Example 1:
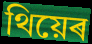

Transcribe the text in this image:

থিয়েৰ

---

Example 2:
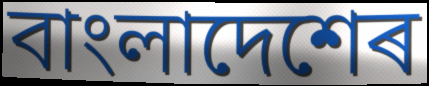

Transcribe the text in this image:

বাংলাদেশেৰ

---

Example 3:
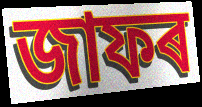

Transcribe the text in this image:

জাফৰ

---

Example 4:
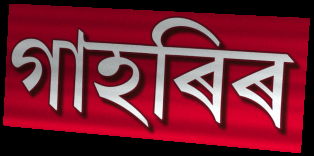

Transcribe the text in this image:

গাহৰিৰ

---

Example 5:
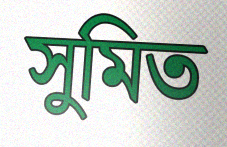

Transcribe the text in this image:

সুমিত